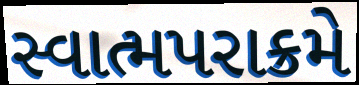
સ્વાત્મપરાક્રમે